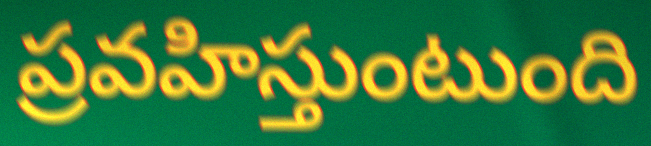
ప్రవహిస్తుంటుంది